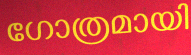
ഗോത്രമായി